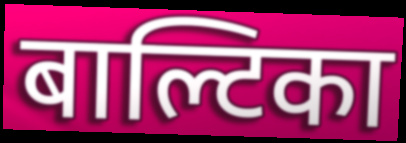
बाल्टिका